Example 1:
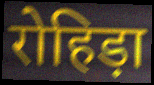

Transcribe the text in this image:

रोहिड़ा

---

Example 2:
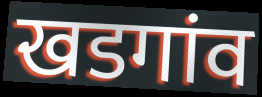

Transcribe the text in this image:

खडगांव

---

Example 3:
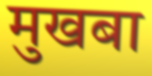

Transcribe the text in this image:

मुखबा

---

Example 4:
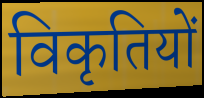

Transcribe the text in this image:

विकृतियों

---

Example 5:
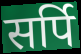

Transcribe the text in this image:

सर्पि